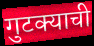
गुटक्याची